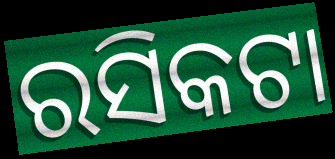
ରସିକଟା